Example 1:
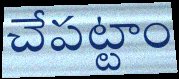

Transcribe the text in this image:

చేపట్టాం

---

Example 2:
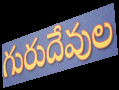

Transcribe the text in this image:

గురుదేవుల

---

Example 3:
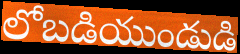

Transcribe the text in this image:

లోబడియుండుడి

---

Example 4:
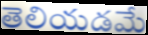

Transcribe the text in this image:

తెలియడమే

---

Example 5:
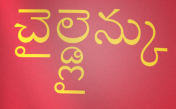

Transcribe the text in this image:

చైల్డ్లైన్కు